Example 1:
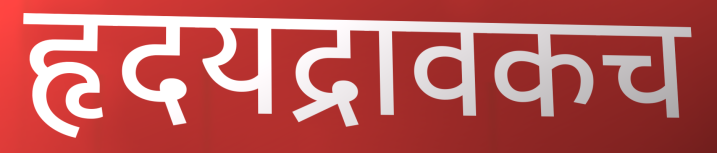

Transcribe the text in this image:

हृदयद्रावकच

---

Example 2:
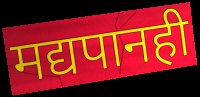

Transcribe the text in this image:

मद्यपानही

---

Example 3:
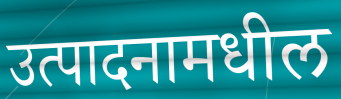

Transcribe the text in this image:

उत्पादनामधील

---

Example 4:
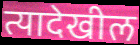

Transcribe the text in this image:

त्यादेखील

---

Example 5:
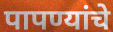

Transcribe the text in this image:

पापण्यांचे